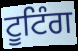
ਟੂਟਿੰਗ